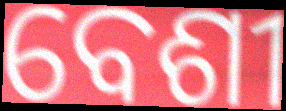
ବେଶୀ